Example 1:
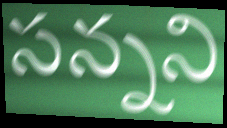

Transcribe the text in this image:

సన్నని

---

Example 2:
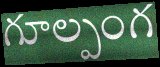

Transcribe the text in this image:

గూల్పంగ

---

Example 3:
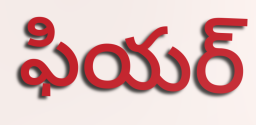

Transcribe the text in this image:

ఫియర్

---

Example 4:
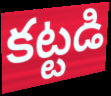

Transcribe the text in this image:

కట్టడి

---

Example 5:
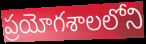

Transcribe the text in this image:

ప్రయోగశాలలోని